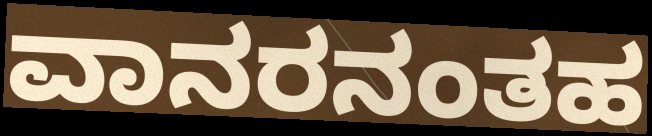
ವಾನರನಂತಹ